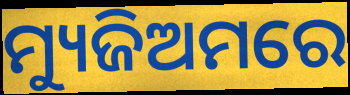
ମ୍ୟୁଜିଅମରେ